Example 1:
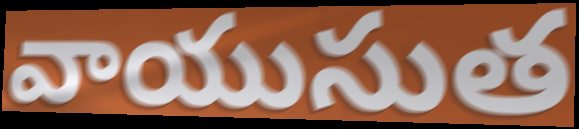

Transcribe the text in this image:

వాయుసుత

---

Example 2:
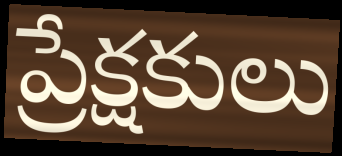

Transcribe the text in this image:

ప్రేక్షకులు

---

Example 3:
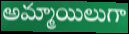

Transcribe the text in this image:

అమ్మాయిలుగా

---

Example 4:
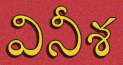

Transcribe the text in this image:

వినీశ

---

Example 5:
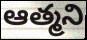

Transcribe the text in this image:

ఆత్మని